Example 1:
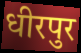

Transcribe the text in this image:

धीरपुर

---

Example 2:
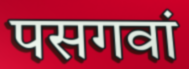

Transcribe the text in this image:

पसगवां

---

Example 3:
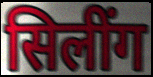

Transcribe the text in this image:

सिलींग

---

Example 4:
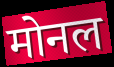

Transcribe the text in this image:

मोनल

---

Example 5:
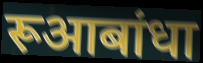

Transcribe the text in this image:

रूआबांधा